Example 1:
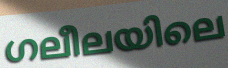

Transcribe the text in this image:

ഗലീലയിലെ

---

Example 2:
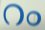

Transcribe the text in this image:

റം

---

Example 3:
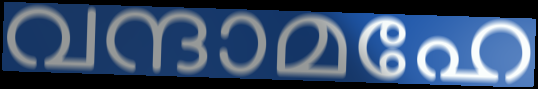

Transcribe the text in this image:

വന്ദാമഹേ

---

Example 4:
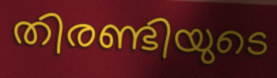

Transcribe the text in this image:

തിരണ്ടിയുടെ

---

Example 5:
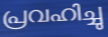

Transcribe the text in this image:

പ്രവഹിച്ചു